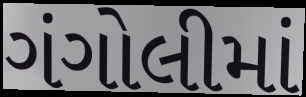
ગંગોલીમાં